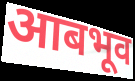
आबभूव